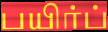
பயிர்ப்